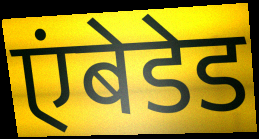
एंबेडेड